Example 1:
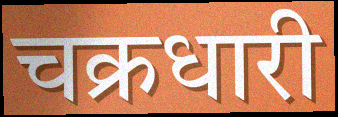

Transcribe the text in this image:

चक्रधारी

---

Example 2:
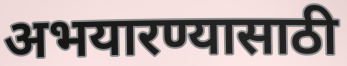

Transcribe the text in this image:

अभयारण्यासाठी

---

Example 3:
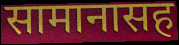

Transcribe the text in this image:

सामानासह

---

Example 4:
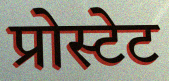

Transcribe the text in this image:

प्रोस्टेट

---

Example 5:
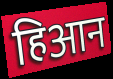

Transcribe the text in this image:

हिआन